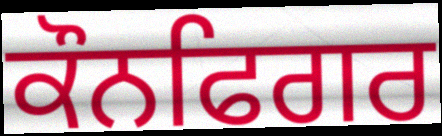
ਕੌਨਫਿਗਰ